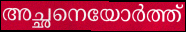
അച്ഛനെയോർത്ത്